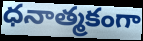
ధనాత్మకంగా